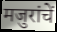
मजुरांचें